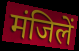
मंजिलें